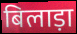
बिलाड़ा